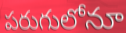
పరుగులోనూ